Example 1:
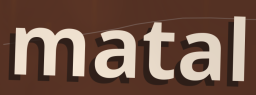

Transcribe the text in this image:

matal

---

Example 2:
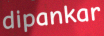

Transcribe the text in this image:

dipankar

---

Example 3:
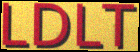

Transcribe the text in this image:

LDLT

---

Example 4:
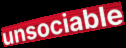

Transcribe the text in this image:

unsociable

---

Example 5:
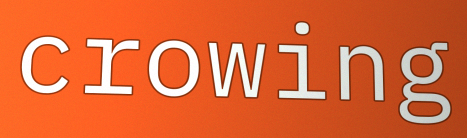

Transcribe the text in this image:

crowing